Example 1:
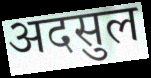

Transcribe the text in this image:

अदसुल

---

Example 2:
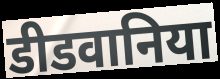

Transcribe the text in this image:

डीडवानिया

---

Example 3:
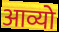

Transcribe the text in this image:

आव्यो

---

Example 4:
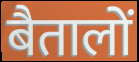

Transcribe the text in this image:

बैतालों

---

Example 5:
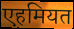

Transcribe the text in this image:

एहमियत